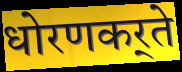
धोरणकर्ते